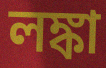
লঙ্কা